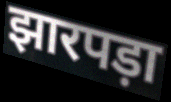
झारपड़ा